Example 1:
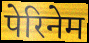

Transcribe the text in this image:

पेरिनेम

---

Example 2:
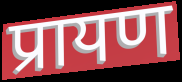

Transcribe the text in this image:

प्रायण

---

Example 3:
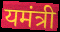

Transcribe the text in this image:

यमंत्री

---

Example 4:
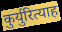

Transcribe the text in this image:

कुर्युरित्याह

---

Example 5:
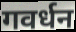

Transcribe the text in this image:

गवर्धन